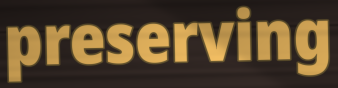
preserving